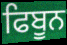
ਫਿਬੂਨ